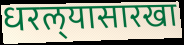
धरल्यासारखा